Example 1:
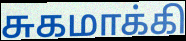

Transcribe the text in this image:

சுகமாக்கி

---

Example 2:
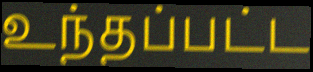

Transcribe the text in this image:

உந்தப்பட்ட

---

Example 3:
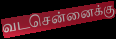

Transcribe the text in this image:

வடசென்னைக்கு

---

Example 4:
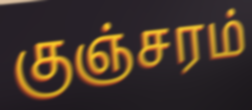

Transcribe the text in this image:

குஞ்சரம்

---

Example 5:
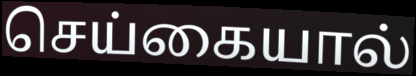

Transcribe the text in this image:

செய்கையால்